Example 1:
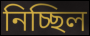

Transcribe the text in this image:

নিচ্ছিল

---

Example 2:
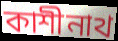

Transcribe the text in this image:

কাশীনাথ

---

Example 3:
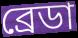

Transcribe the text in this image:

ব্রেডা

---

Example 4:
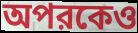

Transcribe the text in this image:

অপরকেও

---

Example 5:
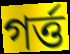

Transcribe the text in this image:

গর্ত্ত